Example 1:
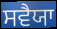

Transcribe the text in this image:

ਸਵੈਯਾ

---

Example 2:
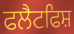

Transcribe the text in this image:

ਫਲੈਟਫਿਸ਼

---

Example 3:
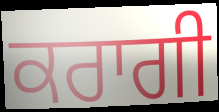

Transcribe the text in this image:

ਕਰਾਗੀ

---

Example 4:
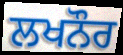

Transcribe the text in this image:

ਲਖਨੌਰ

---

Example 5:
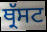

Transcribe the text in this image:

ਥ੍ਰੱਸਟ